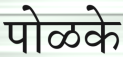
पोळके